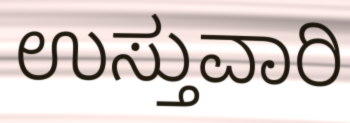
ಉಸ್ತುವಾರಿ